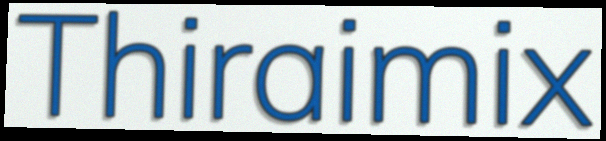
Thiraimix